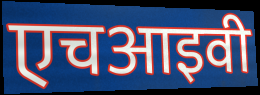
एचआइवी